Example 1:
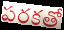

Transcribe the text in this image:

పరకతో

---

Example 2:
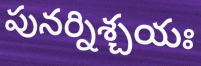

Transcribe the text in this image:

పునర్నిశ్చయః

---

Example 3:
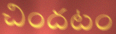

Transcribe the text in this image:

చిందటం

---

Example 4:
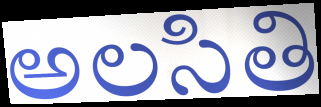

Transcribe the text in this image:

అలసితి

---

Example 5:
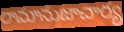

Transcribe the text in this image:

రామానుజాచార్య